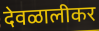
देवळालीकर